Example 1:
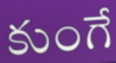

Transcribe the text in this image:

కుంగే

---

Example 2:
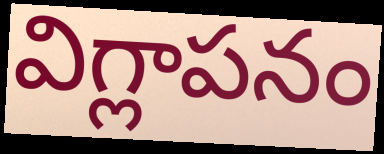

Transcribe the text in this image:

విగ్లాపనం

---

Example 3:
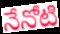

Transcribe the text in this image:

నేనోటి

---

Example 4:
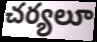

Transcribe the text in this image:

చర్యలూ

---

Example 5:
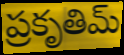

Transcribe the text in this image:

ప్రకృతిమ్